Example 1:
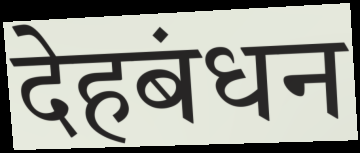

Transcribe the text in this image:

देहबंधन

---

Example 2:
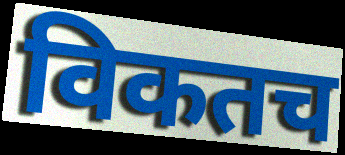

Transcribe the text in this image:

विकतच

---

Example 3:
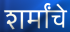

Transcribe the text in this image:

शर्मांचे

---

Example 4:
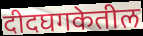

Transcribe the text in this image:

दीदघगकेतील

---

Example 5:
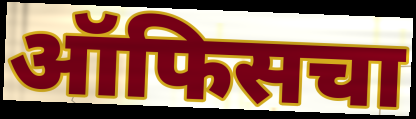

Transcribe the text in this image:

ऑफिसचा